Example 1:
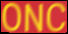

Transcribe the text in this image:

ONC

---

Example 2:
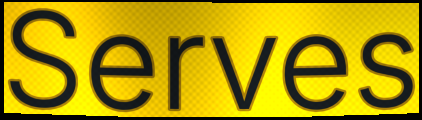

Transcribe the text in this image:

Serves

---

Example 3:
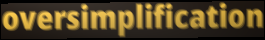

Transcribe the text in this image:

oversimplification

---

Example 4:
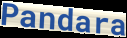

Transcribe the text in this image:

Pandara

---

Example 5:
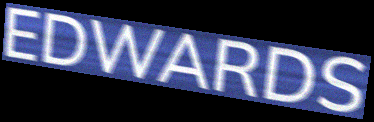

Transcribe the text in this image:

EDWARDS